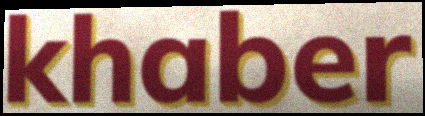
khaber